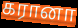
கரானா